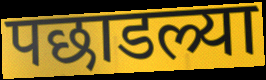
पछाडल्या